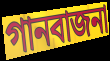
গানবাজনা